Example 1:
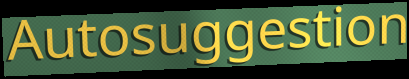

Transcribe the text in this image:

Autosuggestion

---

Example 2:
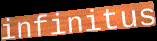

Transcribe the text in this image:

infinitus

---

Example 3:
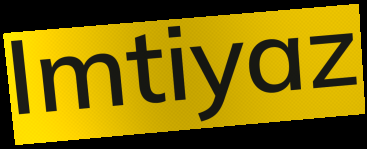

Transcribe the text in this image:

Imtiyaz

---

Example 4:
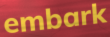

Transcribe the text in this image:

embark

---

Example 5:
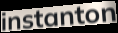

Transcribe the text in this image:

instanton